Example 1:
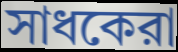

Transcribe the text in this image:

সাধকেরা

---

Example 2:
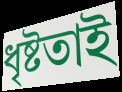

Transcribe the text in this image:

ধৃষ্টতাই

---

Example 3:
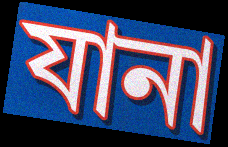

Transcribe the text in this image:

যানা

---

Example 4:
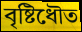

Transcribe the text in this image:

বৃষ্টিধৌত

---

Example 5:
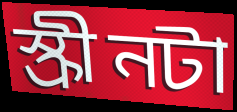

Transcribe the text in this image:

স্ক্রীনটা